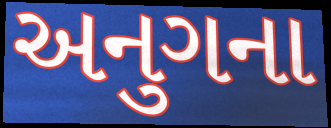
અનુગના